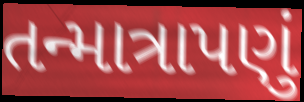
તન્માત્રાપણું